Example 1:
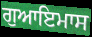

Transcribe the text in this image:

ਗੁਆਇਮਾਸ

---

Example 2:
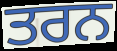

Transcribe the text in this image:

ਤਰਨ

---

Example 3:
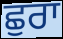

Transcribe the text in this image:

ਛੁਰਾ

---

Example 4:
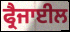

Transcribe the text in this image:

ਫ੍ਰੈਜਾਈਲ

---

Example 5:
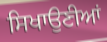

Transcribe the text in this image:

ਸਿਖਾਉਣੀਆਂ